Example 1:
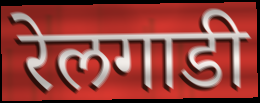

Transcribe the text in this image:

रेलगाडी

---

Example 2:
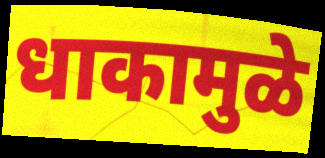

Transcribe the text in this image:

धाकामुळे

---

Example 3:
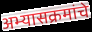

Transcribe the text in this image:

अभ्यासक्रमांचे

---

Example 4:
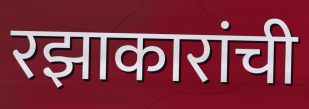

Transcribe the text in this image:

रझाकारांची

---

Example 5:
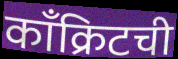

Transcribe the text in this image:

काँक्रिटची